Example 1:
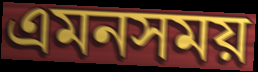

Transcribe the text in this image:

এমনসময়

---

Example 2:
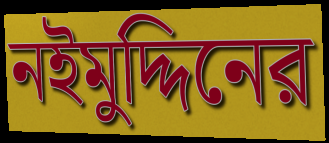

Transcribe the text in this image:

নইমুদ্দিনের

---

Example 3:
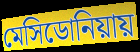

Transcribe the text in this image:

মেসিডোনিয়ায়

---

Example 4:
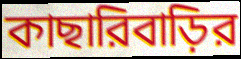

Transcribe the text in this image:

কাছারিবাড়ির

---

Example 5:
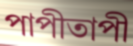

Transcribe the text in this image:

পাপীতাপী